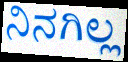
ನಿನಗಿಲ್ಲ